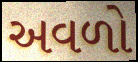
અવળો